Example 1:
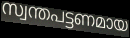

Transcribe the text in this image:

സ്വന്തപട്ടണമായ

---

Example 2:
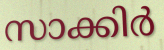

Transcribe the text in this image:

സാക്കിർ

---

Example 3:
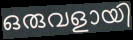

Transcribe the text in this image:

ഒരുവളായി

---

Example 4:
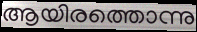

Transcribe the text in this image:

ആയിരത്തൊന്നു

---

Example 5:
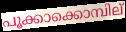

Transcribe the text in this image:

പൂക്കാക്കൊമ്പില്